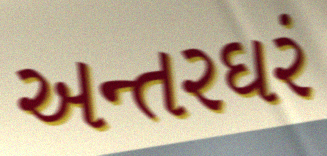
અન્તરઘરં